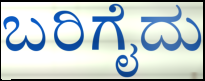
ಬರಿಗೈದು